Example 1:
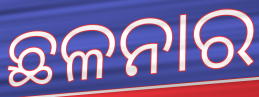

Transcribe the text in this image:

ଛଳନାର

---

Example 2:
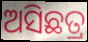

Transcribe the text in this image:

ଅସିଛତ୍ର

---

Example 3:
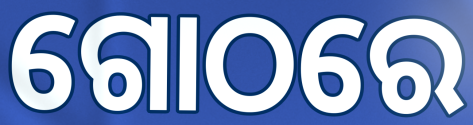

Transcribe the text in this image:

ଗୋଠରେ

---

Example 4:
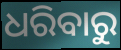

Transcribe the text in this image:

ଧରିବାରୁ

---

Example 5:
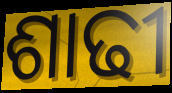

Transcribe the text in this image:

ଶାଢୀ